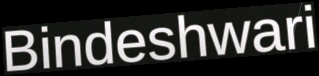
Bindeshwari